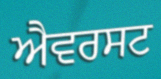
ਐਵਰਸਟ